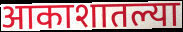
आकाशातल्या